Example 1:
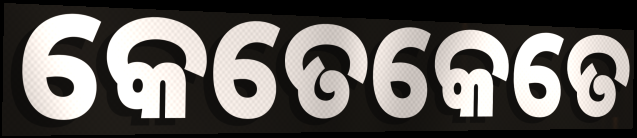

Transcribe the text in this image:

କେତେକେତେ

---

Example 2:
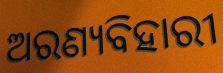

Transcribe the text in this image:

ଅରଣ୍ୟବିହାରୀ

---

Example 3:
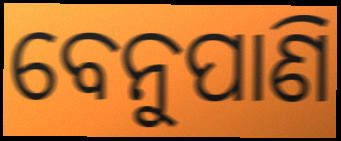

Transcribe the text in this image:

ବେନୁପାଣି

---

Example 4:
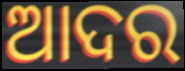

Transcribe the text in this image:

ଆଦର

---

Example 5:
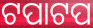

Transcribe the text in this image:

ଟପାଟପ